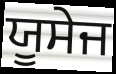
ਯੂਸੇਜ